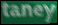
taney